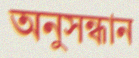
অনুসন্ধান